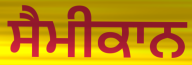
ਸੈਮੀਕਾਨ